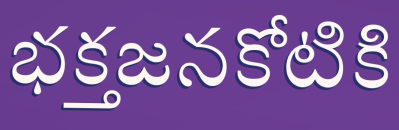
భక్తజనకోటికి